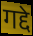
गद्दे